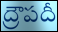
ద్రౌపదీ